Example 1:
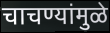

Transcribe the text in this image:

चाचण्यांमुळे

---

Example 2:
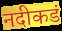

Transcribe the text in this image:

नदीकडं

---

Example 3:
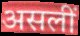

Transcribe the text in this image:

असलीं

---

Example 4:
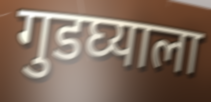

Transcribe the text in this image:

गुडघ्याला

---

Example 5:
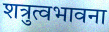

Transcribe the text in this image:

शत्रुत्वभावना